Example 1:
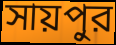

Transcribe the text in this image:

সায়পুর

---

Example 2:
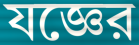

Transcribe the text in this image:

যজ্ঞের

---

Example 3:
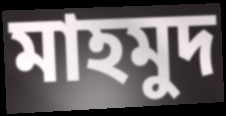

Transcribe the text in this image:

মাহমুদ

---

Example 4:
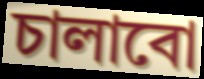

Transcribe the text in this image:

চালাবো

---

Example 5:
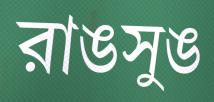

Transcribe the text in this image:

রাঙসুঙ